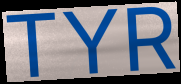
TYR